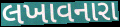
લખાવનારા